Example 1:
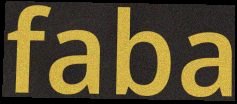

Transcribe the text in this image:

faba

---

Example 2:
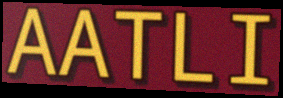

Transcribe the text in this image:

AATLI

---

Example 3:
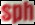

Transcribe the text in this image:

sph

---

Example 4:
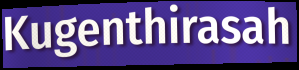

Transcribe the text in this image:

Kugenthirasah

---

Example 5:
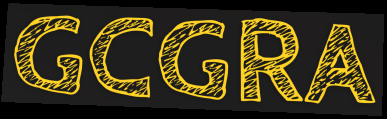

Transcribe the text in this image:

GCGRA